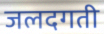
जलदगती